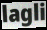
lagli